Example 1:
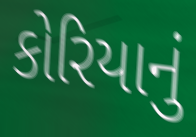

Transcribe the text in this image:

કોરિયાનું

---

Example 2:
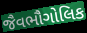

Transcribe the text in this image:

જૈવભૌગોલિક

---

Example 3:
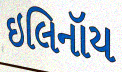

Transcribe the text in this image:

ઇલિનૉય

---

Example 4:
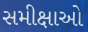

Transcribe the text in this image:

સમીક્ષાઓ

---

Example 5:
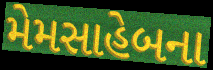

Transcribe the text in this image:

મેમસાહેબના